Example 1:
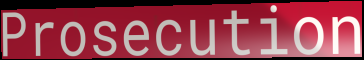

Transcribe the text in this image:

Prosecution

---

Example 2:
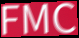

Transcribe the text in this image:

FMC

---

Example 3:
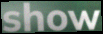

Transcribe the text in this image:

show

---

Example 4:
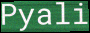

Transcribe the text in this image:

Pyali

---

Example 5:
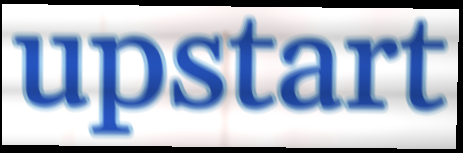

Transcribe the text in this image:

upstart